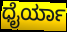
ಧೈರ್ಯಾ